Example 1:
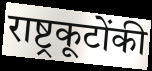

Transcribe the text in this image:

राष्ट्रकूटोंकी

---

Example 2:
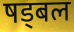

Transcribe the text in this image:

षड्बल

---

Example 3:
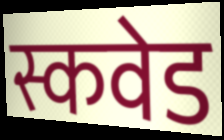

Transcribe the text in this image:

स्कवेड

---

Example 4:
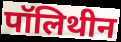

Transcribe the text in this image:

पॉलिथीन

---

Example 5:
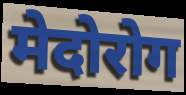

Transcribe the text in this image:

मेदोरोग